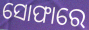
ସୋଫାରେ